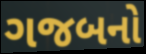
ગજબનો